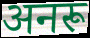
अनरू